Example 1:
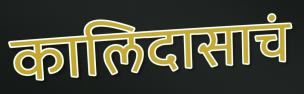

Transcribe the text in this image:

कालिदासाचं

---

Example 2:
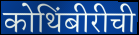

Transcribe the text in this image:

कोथिंबीरीची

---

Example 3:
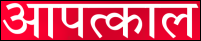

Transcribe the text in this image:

आपत्काल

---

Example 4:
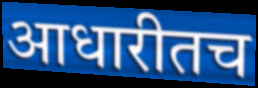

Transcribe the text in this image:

आधारीतच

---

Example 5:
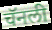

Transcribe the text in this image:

चॅनली